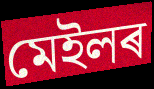
মেইলৰ